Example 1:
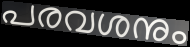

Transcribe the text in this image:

പരവശനും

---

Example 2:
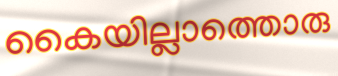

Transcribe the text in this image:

കൈയില്ലാത്തൊരു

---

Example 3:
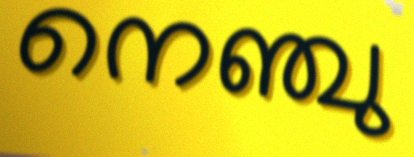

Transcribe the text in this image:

നെഞ്ചു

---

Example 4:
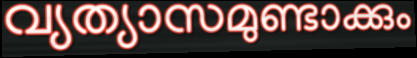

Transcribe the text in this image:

വ്യത്യാസമുണ്ടാക്കും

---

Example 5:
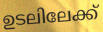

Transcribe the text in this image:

ഉടലിലേക്ക്